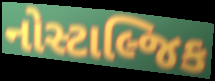
નોસ્ટાલ્જિક